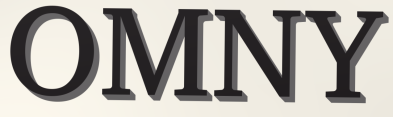
OMNY